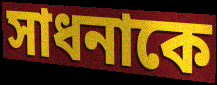
সাধনাকে